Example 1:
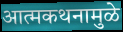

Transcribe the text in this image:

आत्मकथनामुळे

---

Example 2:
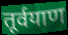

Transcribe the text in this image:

तूर्वयाण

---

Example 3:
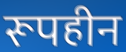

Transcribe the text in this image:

रूपहीन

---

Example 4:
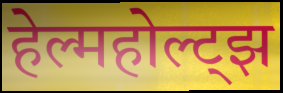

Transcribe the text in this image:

हेल्महोल्ट्झ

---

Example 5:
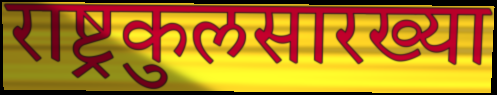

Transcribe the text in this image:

राष्ट्रकुलसारख्या